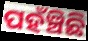
ପହଁଞ୍ଚିଛି